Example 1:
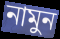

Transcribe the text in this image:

নামুন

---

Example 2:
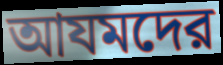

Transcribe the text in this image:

আযমদের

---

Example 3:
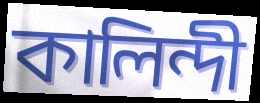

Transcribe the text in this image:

কালিন্দী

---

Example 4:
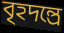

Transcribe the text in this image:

বৃহদন্ত্রে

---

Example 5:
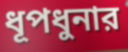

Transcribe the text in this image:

ধূপধুনার